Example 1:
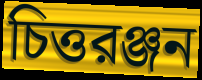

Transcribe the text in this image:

চিত্তরঞ্জন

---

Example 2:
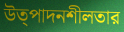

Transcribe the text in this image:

উত্পাদনশীলতার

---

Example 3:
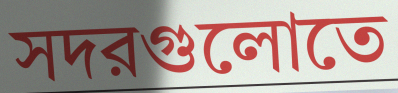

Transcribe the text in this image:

সদরগুলোতে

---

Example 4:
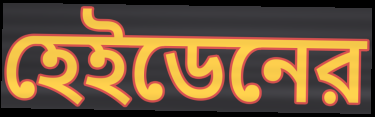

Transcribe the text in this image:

হেইডেনের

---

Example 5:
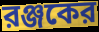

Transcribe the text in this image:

রঞ্জকের